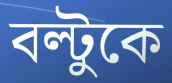
বল্টুকে